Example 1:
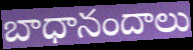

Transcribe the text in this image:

బాధానందాలు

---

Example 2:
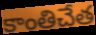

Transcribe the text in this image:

కాంతిచేత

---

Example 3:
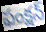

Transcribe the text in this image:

ఫంక్షన్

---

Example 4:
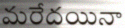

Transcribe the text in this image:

మరేదయినా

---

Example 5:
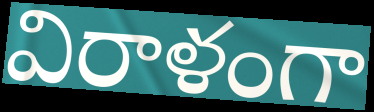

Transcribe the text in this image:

విరాళంగా